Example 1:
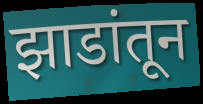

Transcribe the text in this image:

झाडांतून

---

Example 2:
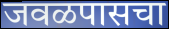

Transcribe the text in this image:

जवळपासचा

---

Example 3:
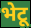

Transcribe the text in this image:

भेटू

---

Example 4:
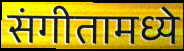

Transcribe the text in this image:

संगीतामध्ये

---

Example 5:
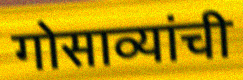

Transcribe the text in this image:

गोसाव्यांची